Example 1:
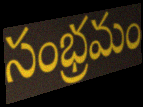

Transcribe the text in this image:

సంభ్రమం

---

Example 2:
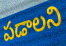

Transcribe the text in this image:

పడాలని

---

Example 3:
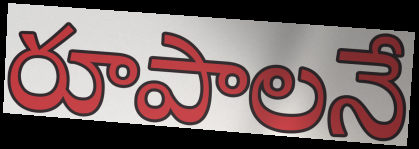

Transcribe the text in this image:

రూపాలనే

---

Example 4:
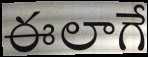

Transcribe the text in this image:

ఈలాగే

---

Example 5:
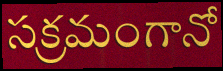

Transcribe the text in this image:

సక్రమంగానో